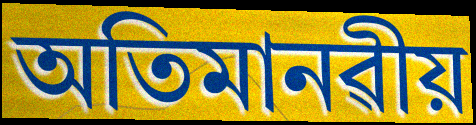
অতিমানৱীয়